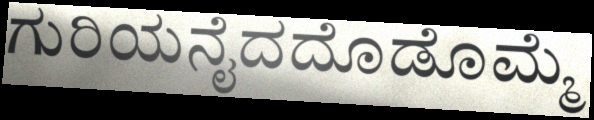
ಗುರಿಯನೈದದೊಡೊಮ್ಮೆ